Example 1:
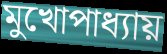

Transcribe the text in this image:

মুখোপাধ্যায়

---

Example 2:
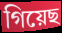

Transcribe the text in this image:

গিয়েছ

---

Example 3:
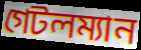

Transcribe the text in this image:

গেটলম্যান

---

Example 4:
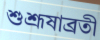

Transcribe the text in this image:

শুশ্রূষাব্রতী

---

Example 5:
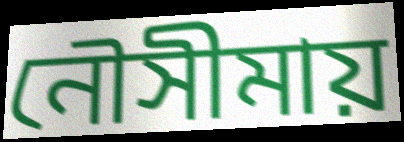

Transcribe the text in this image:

নৌসীমায়